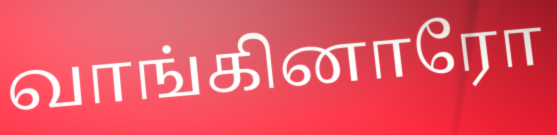
வாங்கினாரோ